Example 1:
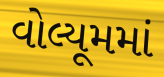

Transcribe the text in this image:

વોલ્યૂમમાં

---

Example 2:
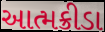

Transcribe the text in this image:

આત્મક્રીડા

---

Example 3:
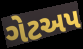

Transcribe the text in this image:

ગેટઅપ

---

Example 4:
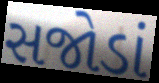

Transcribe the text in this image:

સજોડાં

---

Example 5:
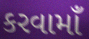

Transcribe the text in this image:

કરવામાઁ